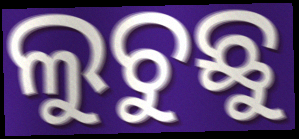
ଲୁଚୁଛୁ